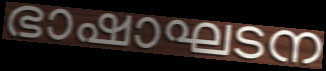
ഭാഷാഘടന